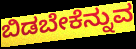
ಬಿಡಬೇಕೆನ್ನುವ